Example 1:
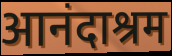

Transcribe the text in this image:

आनंदाश्रम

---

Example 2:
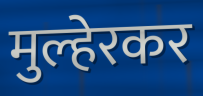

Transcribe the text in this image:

मुल्हेरकर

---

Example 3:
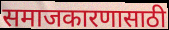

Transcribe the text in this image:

समाजकारणासाठी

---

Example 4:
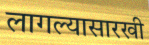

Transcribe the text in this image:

लागल्यासारखी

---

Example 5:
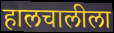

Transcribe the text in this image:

हालचालीला